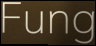
Fung